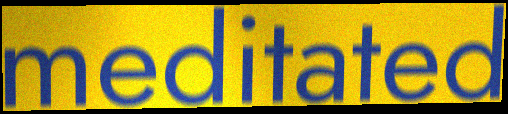
meditated